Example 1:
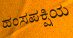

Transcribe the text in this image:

ಹಂಸಪಕ್ಷಿಯ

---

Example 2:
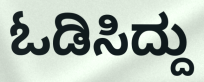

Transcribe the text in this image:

ಓಡಿಸಿದ್ದು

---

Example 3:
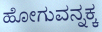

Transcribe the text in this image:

ಹೋಗುವನ್ನಕ್ಕ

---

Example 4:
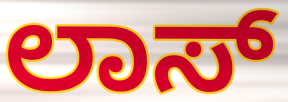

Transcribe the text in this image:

ಲಾಸ್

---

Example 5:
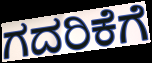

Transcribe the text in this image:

ಗದರಿಕೆಗೆ